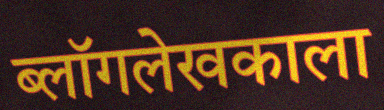
ब्लॉगलेखकाला